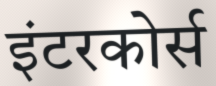
इंटरकोर्स